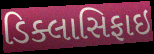
ડિક્લાસિફાઇ